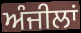
ਅੰਜੀਲਾਂ